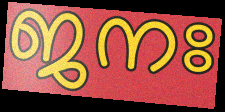
ജനഃ